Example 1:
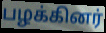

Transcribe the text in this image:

பழக்கினர்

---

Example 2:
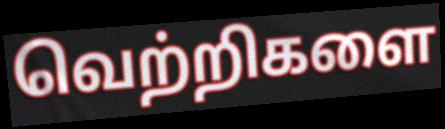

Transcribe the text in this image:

வெற்றிகளை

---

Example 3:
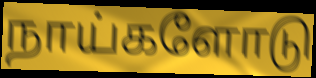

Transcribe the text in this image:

நாய்களோடு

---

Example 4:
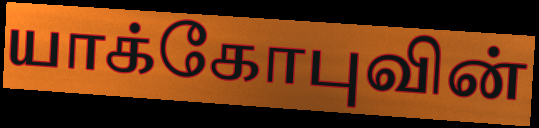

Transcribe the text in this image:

யாக்கோபுவின்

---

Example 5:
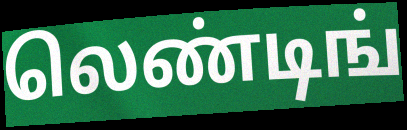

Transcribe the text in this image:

லெண்டிங்